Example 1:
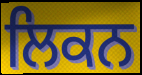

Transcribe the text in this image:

ਲਿਕਨ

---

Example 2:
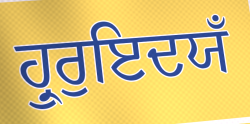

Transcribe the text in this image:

ਹ੍ਰੁਰੁਇਦਯਁ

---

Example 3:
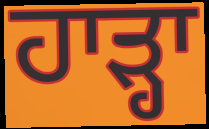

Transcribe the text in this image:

ਹਾੜ੍ਹਾ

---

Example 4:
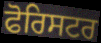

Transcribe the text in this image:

ਫੋਰਿਸਟਰ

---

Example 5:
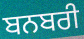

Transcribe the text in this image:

ਬਨਬਰੀ